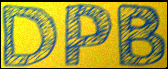
DPB